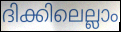
ദിക്കിലെല്ലാം